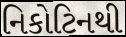
નિકોટિનથી